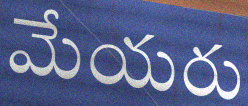
మేయరు